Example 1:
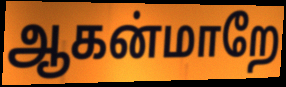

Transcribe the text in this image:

ஆகன்மாறே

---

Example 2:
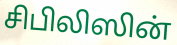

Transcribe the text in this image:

சிபிலிஸின்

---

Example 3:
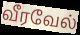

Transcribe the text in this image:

வீரவேல்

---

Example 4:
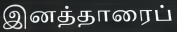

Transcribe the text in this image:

இனத்தாரைப்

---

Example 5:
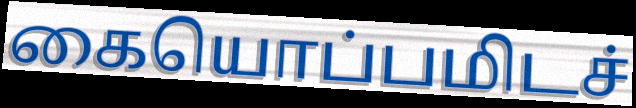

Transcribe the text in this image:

கையொப்பமிடச்